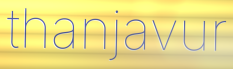
thanjavur